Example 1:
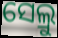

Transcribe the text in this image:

ସେଲ୍ରୁ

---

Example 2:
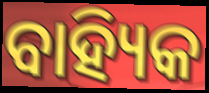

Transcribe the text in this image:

ବାହ୍ୟିକ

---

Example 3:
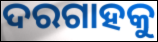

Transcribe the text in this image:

ଦରଗାହକୁ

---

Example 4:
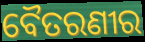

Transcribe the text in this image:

ବୈତରଣୀର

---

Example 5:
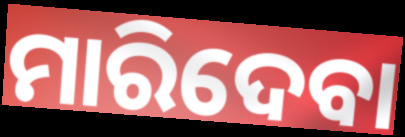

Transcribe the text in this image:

ମାରିଦେବା